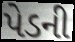
પેડની